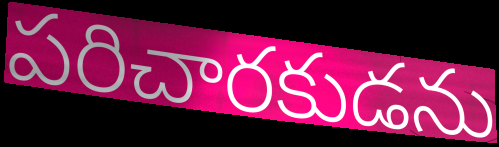
పరిచారకుడను